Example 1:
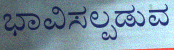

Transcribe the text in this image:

ಭಾವಿಸಲ್ಪಡುವ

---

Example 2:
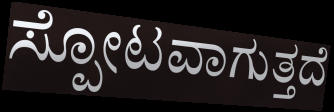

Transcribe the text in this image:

ಸ್ಪೋಟವಾಗುತ್ತದೆ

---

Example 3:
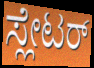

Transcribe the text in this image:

ಸ್ಲೇಟರ್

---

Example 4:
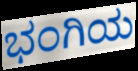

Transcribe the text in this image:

ಭಂಗಿಯ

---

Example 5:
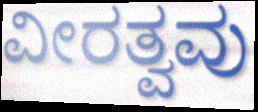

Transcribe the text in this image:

ವೀರತ್ವವು